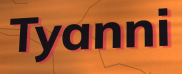
Tyanni